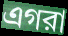
এগরা